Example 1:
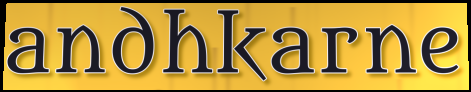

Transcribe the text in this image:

andhkarne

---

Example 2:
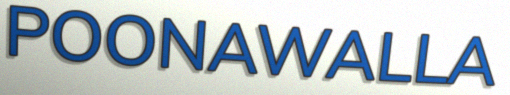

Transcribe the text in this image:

POONAWALLA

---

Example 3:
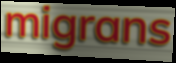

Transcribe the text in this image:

migrans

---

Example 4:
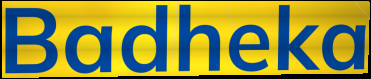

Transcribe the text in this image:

Badheka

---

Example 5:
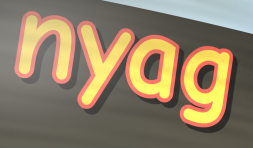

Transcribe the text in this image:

nyag